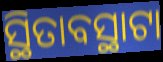
ସ୍ଥିତାବସ୍ଥାଟା